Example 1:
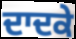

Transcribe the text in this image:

ਦਾਦਕੇ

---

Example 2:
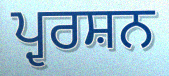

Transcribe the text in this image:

ਪ੍ਦਰਸ਼ਨ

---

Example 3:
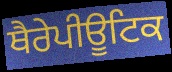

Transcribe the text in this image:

ਥੈਰੇਪੀਊਟਿਕ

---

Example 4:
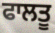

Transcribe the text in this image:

ਫਾਲਤੂ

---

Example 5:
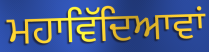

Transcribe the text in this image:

ਮਹਾਵਿੱਦਿਆਵਾਂ